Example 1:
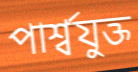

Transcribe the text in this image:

পার্শ্বযুক্ত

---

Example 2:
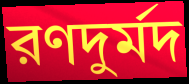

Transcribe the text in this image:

রণদুর্মদ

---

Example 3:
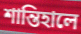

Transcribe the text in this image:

শান্তিহালে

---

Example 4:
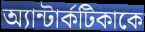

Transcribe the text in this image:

অ্যান্টার্কটিকাকে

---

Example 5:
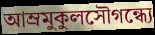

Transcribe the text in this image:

আম্রমুকুলসৌগন্ধ্যে